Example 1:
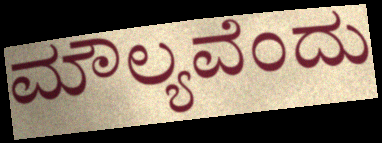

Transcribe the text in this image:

ಮೌಲ್ಯವೆಂದು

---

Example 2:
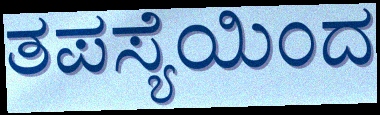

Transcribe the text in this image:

ತಪಸ್ಯೆಯಿಂದ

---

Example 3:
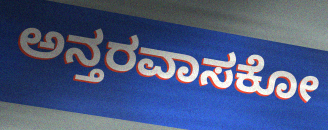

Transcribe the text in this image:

ಅನ್ತರವಾಸಕೋ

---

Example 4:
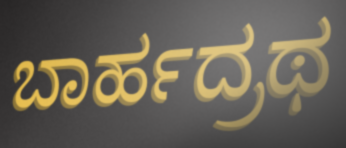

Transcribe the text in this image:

ಬಾರ್ಹದ್ರಥ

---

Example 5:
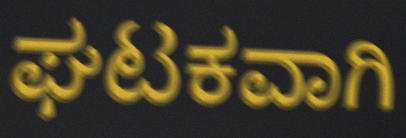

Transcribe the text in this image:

ಘಟಕವಾಗಿ